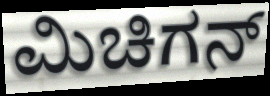
ಮಿಚಿಗನ್